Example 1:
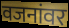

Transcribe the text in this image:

वजनांवर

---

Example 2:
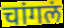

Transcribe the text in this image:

चांगलं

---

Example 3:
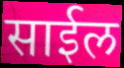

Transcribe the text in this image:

साईल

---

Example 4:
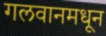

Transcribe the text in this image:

गलवानमधून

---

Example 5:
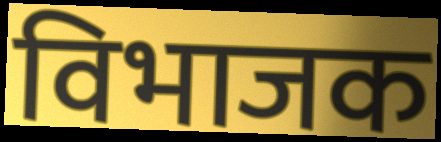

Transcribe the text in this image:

विभाजक